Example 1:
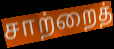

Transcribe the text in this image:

சாற்றைத்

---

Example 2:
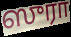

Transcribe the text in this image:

ஸுரா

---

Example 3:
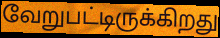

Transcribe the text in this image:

வேறுபட்டிருக்கிறது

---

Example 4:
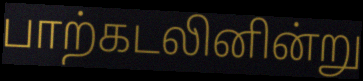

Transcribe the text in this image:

பாற்கடலினின்று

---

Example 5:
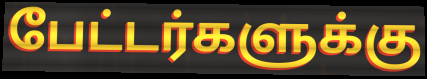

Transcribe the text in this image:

பேட்டர்களுக்கு